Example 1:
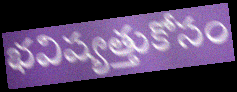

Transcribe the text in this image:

భవిష్యత్తుకోసం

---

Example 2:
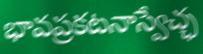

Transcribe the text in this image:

భావప్రకటనాస్వేచ్ఛ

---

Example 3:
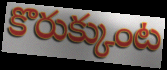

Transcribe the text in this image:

కొరుక్కుంట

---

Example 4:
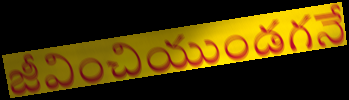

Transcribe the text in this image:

జీవించియుండగనే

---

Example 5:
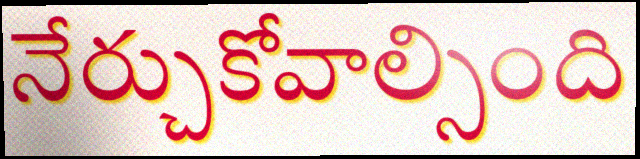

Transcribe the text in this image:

నేర్చుకోవాల్సింది